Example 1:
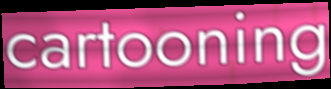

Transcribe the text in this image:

cartooning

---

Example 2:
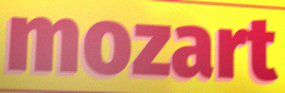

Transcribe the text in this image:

mozart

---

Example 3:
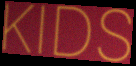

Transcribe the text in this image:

KIDS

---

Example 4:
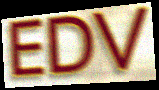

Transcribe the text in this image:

EDV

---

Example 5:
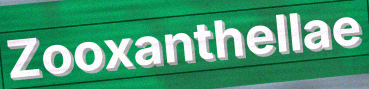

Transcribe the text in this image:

Zooxanthellae